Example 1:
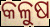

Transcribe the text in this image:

କଳୁଷ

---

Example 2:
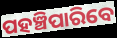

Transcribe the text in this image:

ପହଞ୍ଚିପାରିବେ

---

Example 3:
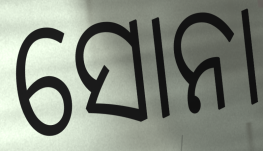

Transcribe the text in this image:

ସୋନା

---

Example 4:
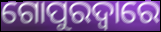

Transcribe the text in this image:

ଗୋପୁରଦ୍ଵାରେ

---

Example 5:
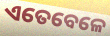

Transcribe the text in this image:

ଏତେବେଳେ